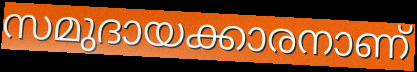
സമുദായക്കാരനാണ്